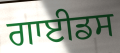
ਗਾਈਡਸ